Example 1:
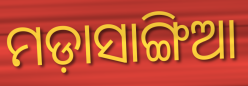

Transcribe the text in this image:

ମଡ଼ାସାଙ୍ଗିଆ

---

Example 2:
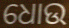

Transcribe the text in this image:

ଧୋଉ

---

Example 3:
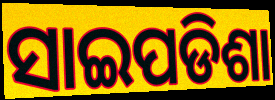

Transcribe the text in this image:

ସାଇପଡିଶା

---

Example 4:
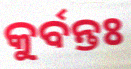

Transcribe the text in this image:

କୁର୍ବନ୍ତଃ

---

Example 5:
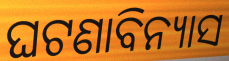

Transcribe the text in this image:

ଘଟଣାବିନ୍ୟାସ